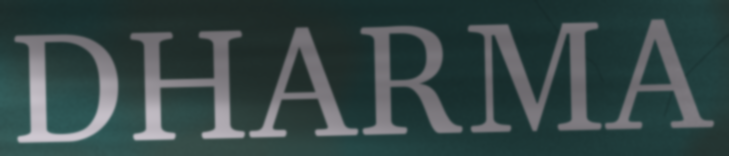
DHARMA